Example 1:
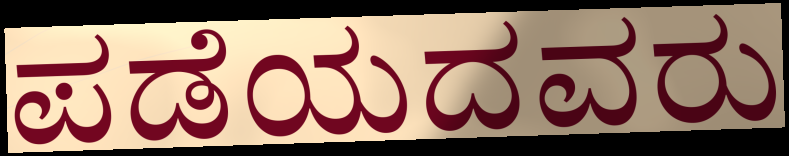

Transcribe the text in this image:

ಪಡೆಯದವರು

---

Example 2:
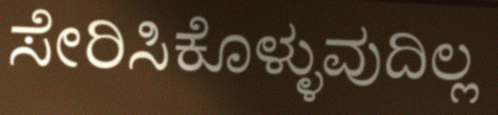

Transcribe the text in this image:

ಸೇರಿಸಿಕೊಳ್ಳುವುದಿಲ್ಲ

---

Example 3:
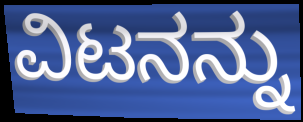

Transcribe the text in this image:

ವಿಟನನ್ನು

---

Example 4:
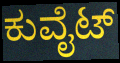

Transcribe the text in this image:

ಕುವೈಟ್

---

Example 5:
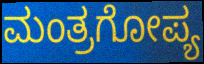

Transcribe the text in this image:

ಮಂತ್ರಗೋಪ್ಯ